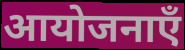
आयोजनाएँ